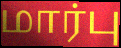
மார்பு